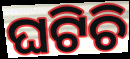
ଘଟିଚି